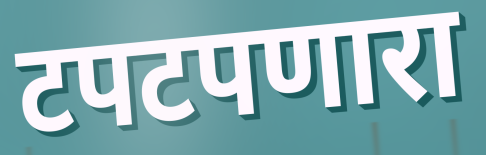
टपटपणारा